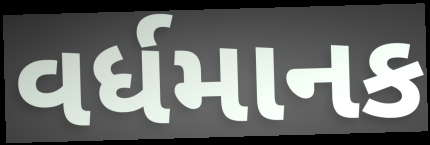
વર્ધમાનક